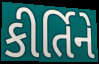
કીર્તિને